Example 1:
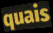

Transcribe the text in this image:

quais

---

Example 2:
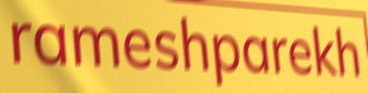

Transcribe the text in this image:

rameshparekh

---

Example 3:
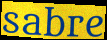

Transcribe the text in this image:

sabre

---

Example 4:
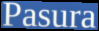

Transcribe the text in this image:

Pasura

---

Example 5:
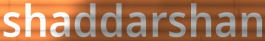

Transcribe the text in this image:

shaddarshan